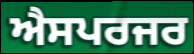
ਐਸਪਰਜਰ